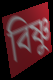
বিষ্ণু